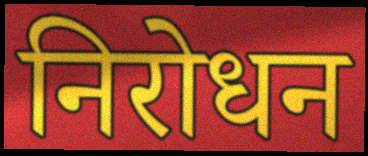
निरोधन